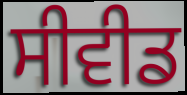
ਸੀਵੀਡ